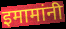
इमामांनी